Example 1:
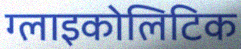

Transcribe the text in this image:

ग्लाइकोलिटिक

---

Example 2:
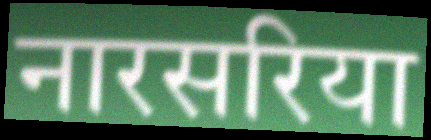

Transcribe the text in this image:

नारसरिया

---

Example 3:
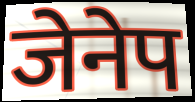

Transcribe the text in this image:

जेनेप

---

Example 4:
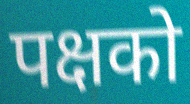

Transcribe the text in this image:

पक्षको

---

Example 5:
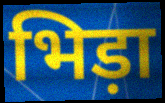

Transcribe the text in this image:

भिड़ा